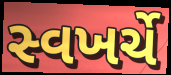
સ્વખર્ચે